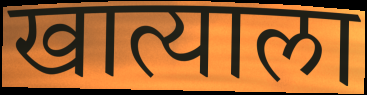
खात्याला